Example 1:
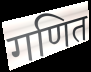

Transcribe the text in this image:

गणित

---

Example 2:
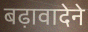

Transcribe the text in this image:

बढ़ावादेने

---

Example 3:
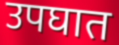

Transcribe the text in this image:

उपघात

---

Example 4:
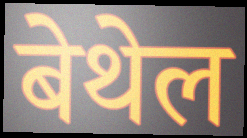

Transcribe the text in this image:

बेथेल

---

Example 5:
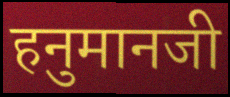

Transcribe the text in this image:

हनुमानजी